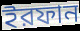
ইরফান